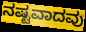
ನಷ್ಟವಾದವು